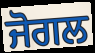
ਜੋਗਲ